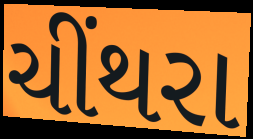
ચીંથરા